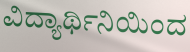
ವಿದ್ಯಾರ್ಥಿನಿಯಿಂದ